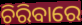
ଚିରିବାରେ